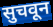
सुचवून